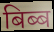
बिब्ब